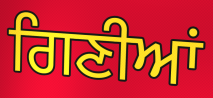
ਗਿਣੀਆਂ